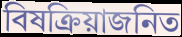
বিষক্রিয়াজনিত